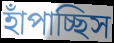
হাঁপাচ্ছিস